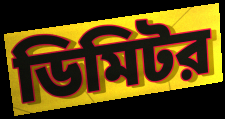
ডিমিটর